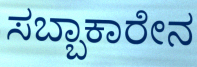
ಸಬ್ಬಾಕಾರೇನ